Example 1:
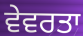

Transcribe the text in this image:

ਵੇਵਰਤਾ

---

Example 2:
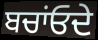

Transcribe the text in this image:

ਬਚਾਂਓਦੇ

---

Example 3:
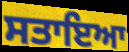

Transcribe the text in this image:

ਸਤਾਇਆ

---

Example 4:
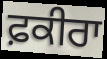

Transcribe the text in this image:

ਫ਼ਕੀਰਾ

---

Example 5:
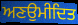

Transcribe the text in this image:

ਅਣਉਮੀਦਿਤ